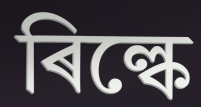
ৰিল্কে